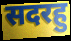
सदरहु